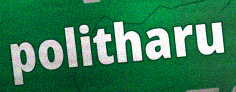
politharu